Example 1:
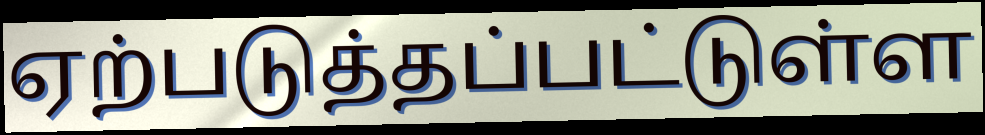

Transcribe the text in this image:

ஏற்படுத்தப்பட்டுள்ள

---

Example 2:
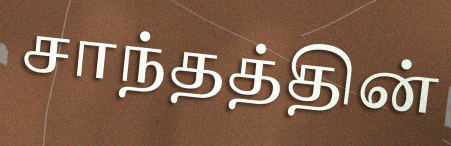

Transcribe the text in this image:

சாந்தத்தின்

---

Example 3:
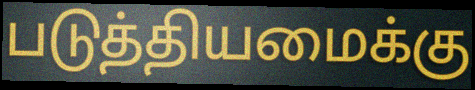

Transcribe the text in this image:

படுத்தியமைக்கு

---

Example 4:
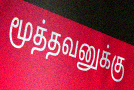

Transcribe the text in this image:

மூத்தவனுக்கு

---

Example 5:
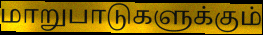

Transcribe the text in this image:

மாறுபாடுகளுக்கும்